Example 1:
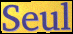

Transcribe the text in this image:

Seul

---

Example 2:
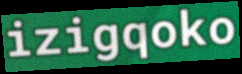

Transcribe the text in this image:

izigqoko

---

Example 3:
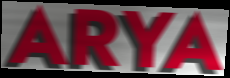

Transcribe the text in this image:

ARYA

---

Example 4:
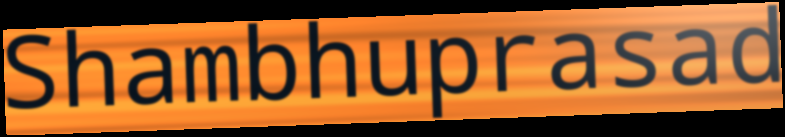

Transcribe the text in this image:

Shambhuprasad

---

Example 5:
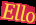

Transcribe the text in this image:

Ello